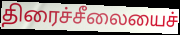
திரைச்சீலையைச்